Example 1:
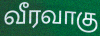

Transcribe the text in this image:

வீரவாகு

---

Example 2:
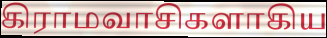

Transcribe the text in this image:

கிராமவாசிகளாகிய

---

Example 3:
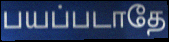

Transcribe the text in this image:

பயப்படாதே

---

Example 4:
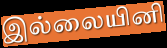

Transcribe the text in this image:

இல்லையினி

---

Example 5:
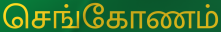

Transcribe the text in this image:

செங்கோணம்